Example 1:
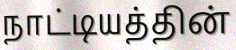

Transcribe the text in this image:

நாட்டியத்தின்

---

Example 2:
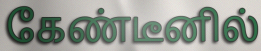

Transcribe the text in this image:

கேண்டீனில்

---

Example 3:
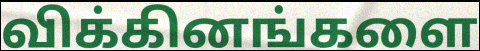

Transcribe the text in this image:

விக்கினங்களை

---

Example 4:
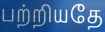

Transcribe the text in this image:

பற்றியதே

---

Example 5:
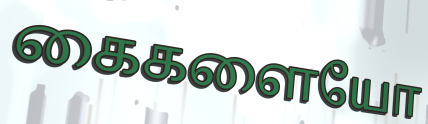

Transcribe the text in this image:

கைகளையோ